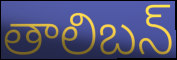
తాలిబన్